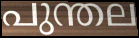
പുന്തല